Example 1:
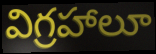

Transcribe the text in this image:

విగ్రహాలూ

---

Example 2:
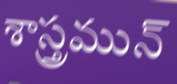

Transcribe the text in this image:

శాస్త్రమున్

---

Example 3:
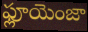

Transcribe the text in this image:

ఫ్లూయెంజా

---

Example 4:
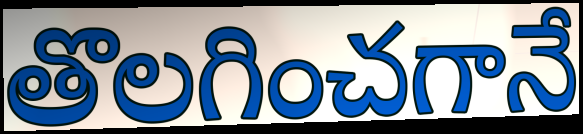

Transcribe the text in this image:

తొలగించగానే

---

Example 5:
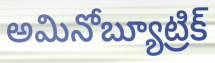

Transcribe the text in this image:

అమినోబ్యూట్రిక్